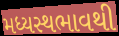
મધ્યસ્થભાવથી